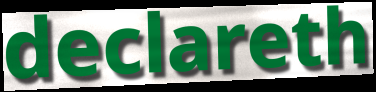
declareth